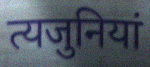
त्यजुनियां